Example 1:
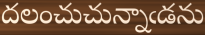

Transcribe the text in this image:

దలంచుచున్నాఁడను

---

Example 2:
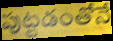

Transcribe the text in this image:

పుట్టడంతోనే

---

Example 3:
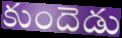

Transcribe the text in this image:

కుందెడు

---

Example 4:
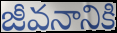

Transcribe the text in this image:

జీవనానికి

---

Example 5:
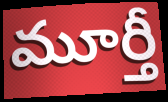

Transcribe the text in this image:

మూర్తీ